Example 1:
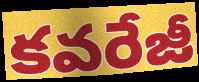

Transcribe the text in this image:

కవరేజీ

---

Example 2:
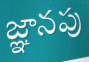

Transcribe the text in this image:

జ్ఞానపు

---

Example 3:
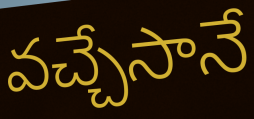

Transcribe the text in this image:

వచ్చేసానే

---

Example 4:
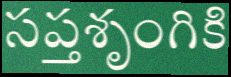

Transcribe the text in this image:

సప్తశృంగికి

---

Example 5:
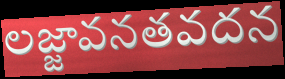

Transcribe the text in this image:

లజ్జావనతవదన